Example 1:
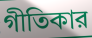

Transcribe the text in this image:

গীতিকার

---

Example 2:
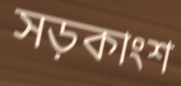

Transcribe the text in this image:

সড়কাংশ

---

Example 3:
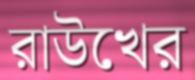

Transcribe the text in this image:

রাউখের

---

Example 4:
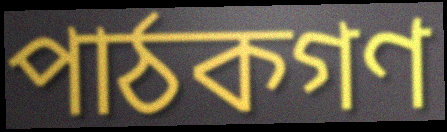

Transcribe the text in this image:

পাঠকগণ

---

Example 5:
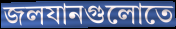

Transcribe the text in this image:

জলযানগুলোতে